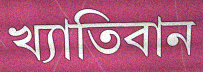
খ্যাতিবান